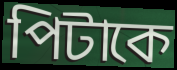
পিটাকে